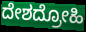
ದೇಶದ್ರೋಹಿ